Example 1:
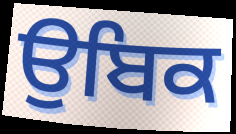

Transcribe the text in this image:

ਉਬਿਕ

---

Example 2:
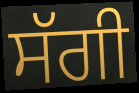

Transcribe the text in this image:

ਸੱਗੀ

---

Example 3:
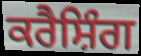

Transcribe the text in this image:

ਕਰੈਸ਼ਿੰਗ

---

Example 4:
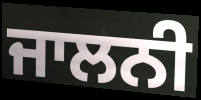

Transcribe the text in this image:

ਜਾਲਨੀ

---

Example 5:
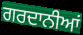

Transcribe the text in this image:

ਗਰਦਾਨੀਆਂ